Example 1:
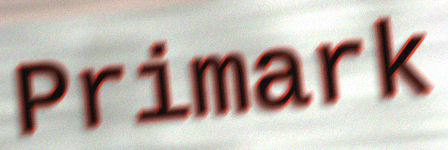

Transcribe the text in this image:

Primark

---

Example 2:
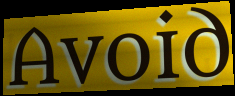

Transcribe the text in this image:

Avoid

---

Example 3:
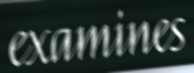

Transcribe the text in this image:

examines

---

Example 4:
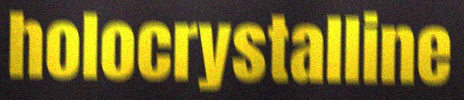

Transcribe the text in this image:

holocrystalline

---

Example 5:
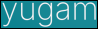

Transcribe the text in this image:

yugam